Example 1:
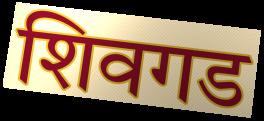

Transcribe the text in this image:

शिवगड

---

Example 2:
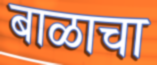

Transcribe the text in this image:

बाळाचा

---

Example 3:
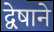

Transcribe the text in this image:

द्वेषाने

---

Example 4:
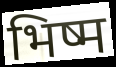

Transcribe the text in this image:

भिष्म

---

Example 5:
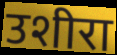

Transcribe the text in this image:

उशीरा